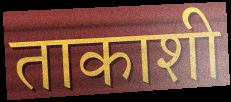
ताकाशी